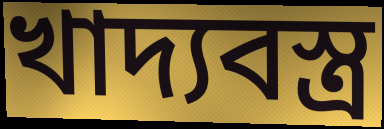
খাদ্যবস্ত্র